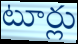
టూర్లు